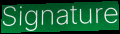
Signature